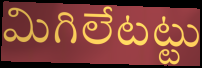
మిగిలేటట్టు